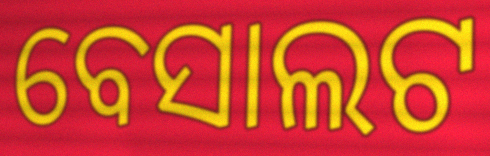
ବେସାଲଟ